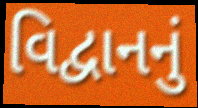
વિદ્વાનનું